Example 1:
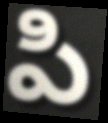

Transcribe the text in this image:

పి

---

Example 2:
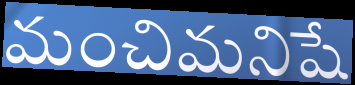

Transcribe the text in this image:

మంచిమనిషే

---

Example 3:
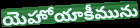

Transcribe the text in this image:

యెహోయాకీమును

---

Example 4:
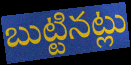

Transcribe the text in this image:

బుట్టినట్లు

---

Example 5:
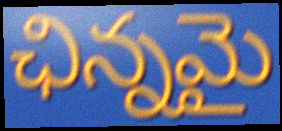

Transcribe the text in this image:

ఛిన్నమై